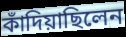
কাঁদিয়াছিলেন